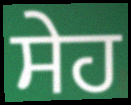
ਸੇਹ